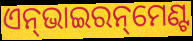
ଏନ୍‌ଭାଇରନ୍‌ମେଣ୍ଟ